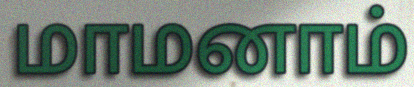
மாமனாம்